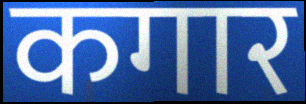
कगार